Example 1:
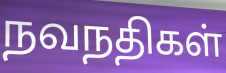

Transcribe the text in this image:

நவநதிகள்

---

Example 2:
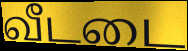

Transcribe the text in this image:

வீடடை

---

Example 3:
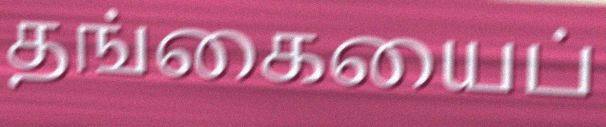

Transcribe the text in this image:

தங்கையைப்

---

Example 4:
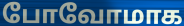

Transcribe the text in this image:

போவோமாக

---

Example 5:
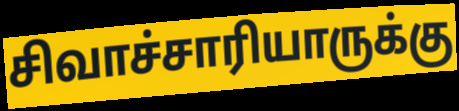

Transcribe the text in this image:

சிவாச்சாரியாருக்கு